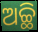
ଅଚ୍ଛି